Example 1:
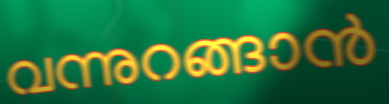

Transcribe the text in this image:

വന്നുറങ്ങാൻ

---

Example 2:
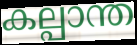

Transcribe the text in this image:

കല്പാന്ത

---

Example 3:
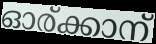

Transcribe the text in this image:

ഓര്ക്കാന്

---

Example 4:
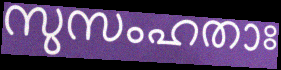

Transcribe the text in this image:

സുസംഹതാഃ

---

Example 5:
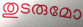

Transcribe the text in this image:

തുടരുമോ